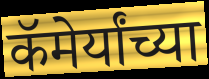
कॅमेर्यांच्या